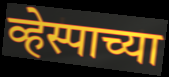
व्हेस्पाच्या